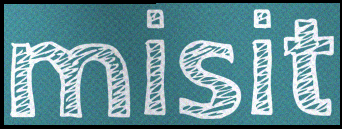
misit